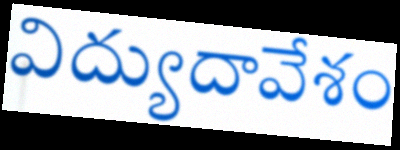
విద్యుదావేశం